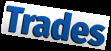
Trades